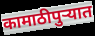
कामाठीपुर्‍यात